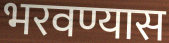
भरवण्यास